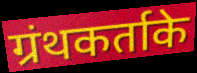
ग्रंथकर्ताके